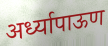
अर्ध्यापाऊण